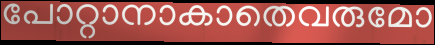
പോറ്റാനാകാതെവരുമോ